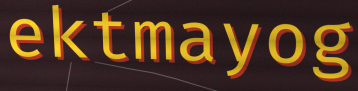
ektmayog